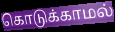
கொடுக்காமல்